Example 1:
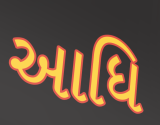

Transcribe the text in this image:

આધિ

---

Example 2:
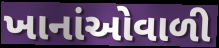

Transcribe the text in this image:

ખાનાંઓવાળી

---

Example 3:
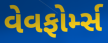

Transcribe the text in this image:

વેવફોર્મ્સ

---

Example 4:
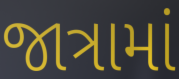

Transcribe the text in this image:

જાત્રામાં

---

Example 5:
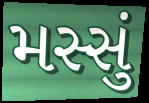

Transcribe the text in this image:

મસ્સું